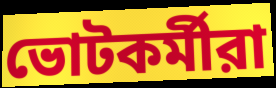
ভোটকর্মীরা